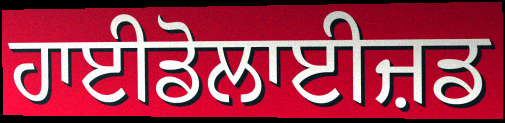
ਹਾਈਡੋਲਾਈਜ਼ਡ